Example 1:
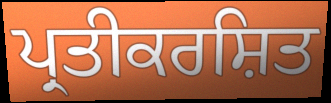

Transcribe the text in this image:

ਪ੍ਰਤੀਕਰਸ਼ਿਤ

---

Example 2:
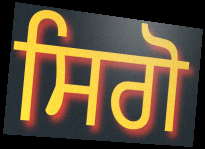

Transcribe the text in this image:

ਸਿਗੋ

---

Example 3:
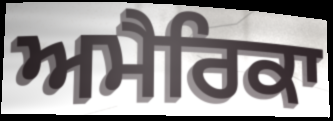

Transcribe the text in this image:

ਅਮੈਰਿਕਾ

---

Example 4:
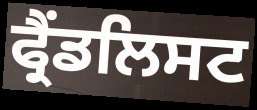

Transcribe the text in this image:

ਫ੍ਰੈਂਡਲਿਸਟ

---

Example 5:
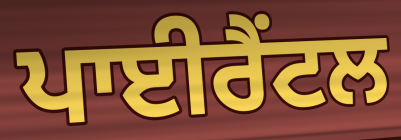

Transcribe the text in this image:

ਪਾਈਰੈਂਟਲ